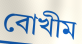
বোখীম